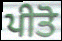
ਪੀਤੋ